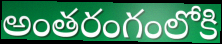
అంతరంగంలోకి